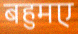
बहुमए